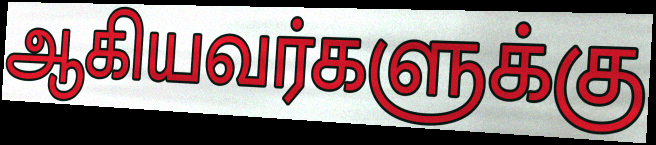
ஆகியவர்களுக்கு